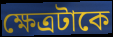
ক্ষেত্রটাকে